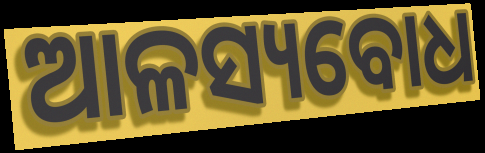
ଆଳସ୍ୟବୋଧ